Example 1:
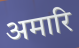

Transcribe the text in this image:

अमारि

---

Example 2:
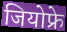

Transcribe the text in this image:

जियोफ्रे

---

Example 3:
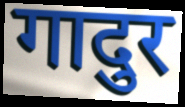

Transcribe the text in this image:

गादुर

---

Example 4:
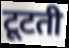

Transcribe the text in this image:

टूटती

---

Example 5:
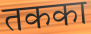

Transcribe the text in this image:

तकका